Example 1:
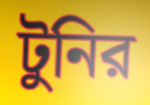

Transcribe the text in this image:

টুনির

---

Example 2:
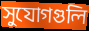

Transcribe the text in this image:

সুযোগগুলি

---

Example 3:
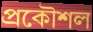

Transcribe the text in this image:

প্রকৌশল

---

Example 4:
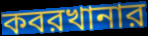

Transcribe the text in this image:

কবরখানার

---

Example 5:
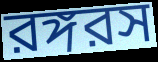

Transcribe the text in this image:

রঙ্গরস